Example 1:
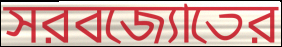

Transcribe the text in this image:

সরবজ্যোতের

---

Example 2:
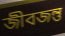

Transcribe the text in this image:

জীবজন্তু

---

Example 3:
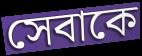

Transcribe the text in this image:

সেবাকে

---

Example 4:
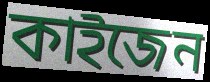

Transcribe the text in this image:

কাইজেন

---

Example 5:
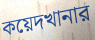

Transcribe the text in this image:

কয়েদখানার